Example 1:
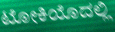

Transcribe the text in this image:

ಟೋಕಿಯೊದಲ್ಲಿ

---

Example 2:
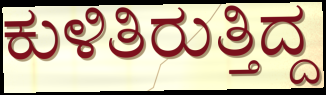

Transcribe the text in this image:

ಕುಳಿತಿರುತ್ತಿದ್ದ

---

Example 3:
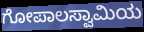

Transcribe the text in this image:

ಗೋಪಾಲಸ್ವಾಮಿಯ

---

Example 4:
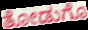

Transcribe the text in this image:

ತೋಡುಗೊ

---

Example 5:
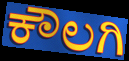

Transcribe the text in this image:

ಕೌಲಗಿ